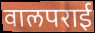
वालपराई